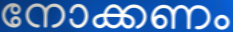
നോക്കണം